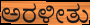
ಅರಳೀತು